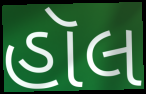
હૉલ